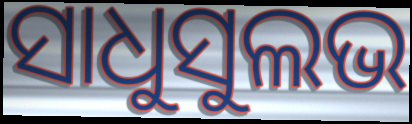
ସାଧୁସୁଲଭ